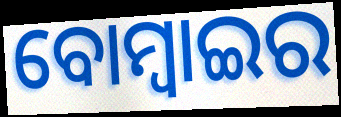
ବୋମ୍ବାଇର